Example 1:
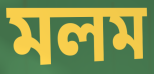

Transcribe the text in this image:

মলম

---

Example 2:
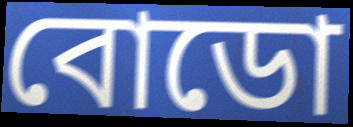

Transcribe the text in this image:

বোডো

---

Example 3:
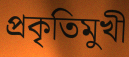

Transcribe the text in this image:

প্রকৃতিমুখী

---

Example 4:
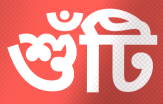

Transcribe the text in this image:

শুঁটি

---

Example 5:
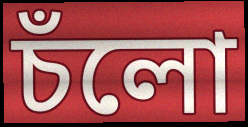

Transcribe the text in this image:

চঁলো